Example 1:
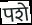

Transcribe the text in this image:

पशे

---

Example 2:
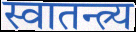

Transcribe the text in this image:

स्वातन्त्र्य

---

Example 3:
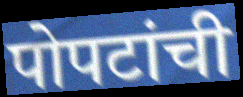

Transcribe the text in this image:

पोपटांची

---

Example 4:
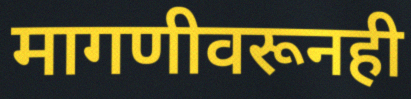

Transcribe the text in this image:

मागणीवरूनही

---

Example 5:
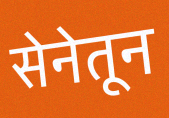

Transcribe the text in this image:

सेनेतून